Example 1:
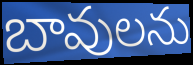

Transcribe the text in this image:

బావులను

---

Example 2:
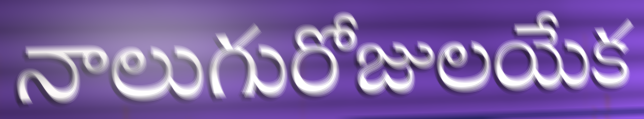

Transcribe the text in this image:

నాలుగురోజులయేక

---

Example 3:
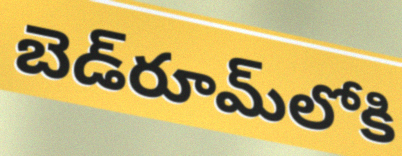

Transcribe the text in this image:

బెడ్‌రూమ్‌లోకి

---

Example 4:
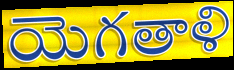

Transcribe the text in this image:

యెగతాళి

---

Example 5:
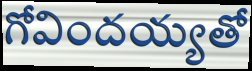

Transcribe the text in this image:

గోవిందయ్యతో